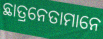
ଛାତ୍ରନେତାମାନେ